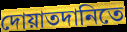
দোয়াতদানিতে